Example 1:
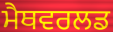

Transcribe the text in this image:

ਮੈਥਵਰਲਡ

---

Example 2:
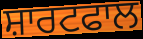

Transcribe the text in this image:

ਸ਼ਾਰਟਫਾਲ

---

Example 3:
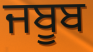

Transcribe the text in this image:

ਜਬੂਬ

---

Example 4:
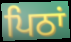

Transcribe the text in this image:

ਪਿਠਾਂ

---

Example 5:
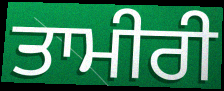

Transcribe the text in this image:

ਤਾਮੀਰੀ